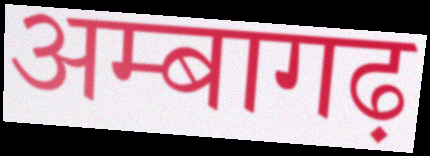
अम्बागढ़